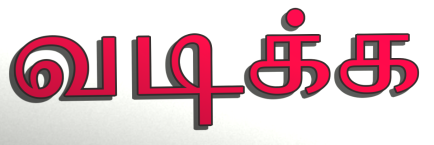
வடிக்க